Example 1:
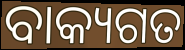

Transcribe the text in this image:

ବାକ୍ୟଗତ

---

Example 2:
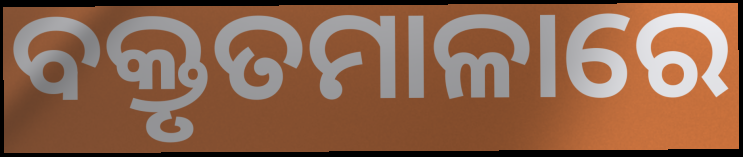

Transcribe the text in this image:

ବକ୍ତୃତମାଳାରେ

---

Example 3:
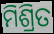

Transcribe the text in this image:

ମିଶ୍ରିତ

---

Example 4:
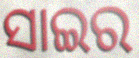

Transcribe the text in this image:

ସାଇର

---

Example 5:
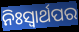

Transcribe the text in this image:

ନିଃସ୍ୱାର୍ଥପର